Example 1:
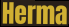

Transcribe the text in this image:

Herma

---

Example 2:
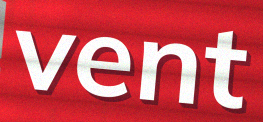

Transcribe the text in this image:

vent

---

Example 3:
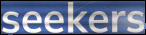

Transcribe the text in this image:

seekers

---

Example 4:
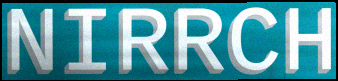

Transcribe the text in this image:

NIRRCH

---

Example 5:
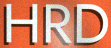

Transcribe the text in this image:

HRD